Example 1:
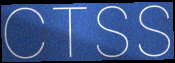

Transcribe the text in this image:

CTSS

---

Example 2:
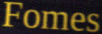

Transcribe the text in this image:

Fomes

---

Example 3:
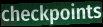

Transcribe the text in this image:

checkpoints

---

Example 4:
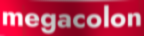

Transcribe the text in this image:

megacolon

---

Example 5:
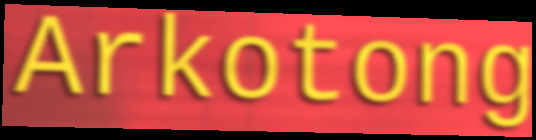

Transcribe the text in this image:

Arkotong